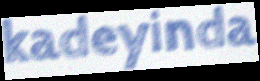
kadeyinda